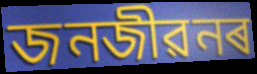
জনজীৱনৰ